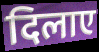
दिलाए